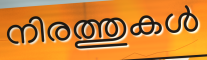
നിരത്തുകൾ